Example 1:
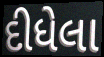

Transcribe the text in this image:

દીધેલા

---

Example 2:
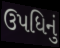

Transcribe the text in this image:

ઉપધિનું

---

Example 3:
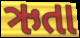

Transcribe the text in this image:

ઋતા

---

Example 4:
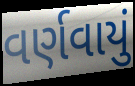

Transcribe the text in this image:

વર્ણવાયું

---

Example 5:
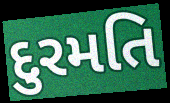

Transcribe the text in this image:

દુરમતિ